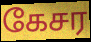
கேசர